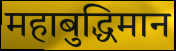
महाबुद्धिमान